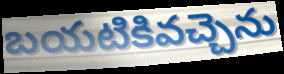
బయటికివచ్చెను